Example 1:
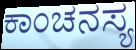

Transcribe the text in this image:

ಕಾಂಚನಸ್ಯ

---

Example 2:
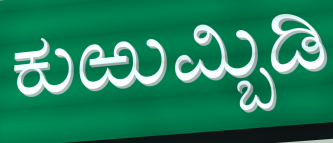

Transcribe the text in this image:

ಕುಱುಮ್ಬಿಡಿ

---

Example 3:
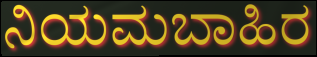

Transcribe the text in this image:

ನಿಯಮಬಾಹಿರ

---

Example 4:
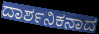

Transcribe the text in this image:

ದಾರ್ಶನಿಕನಾದ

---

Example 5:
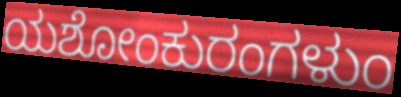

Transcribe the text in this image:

ಯಶೋಂಕುರಂಗಳುಂ